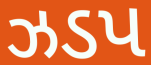
ઝડપ